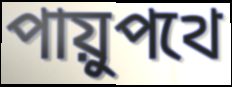
পায়ুপথে